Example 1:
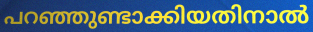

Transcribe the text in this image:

പറഞ്ഞുണ്ടാക്കിയതിനാൽ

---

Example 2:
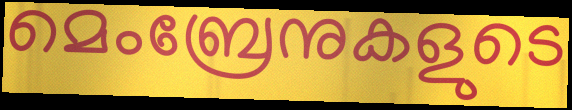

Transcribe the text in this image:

മെംബ്രേനുകളുടെ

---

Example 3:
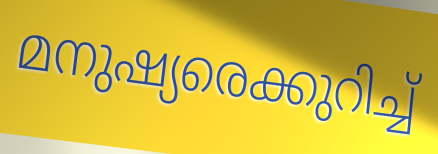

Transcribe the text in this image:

മനുഷ്യരെക്കുറിച്ച്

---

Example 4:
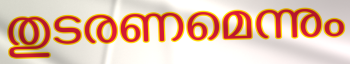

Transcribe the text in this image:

തുടരണമെന്നും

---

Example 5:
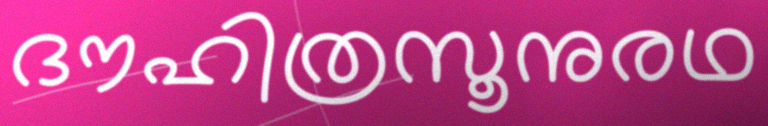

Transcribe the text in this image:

ദൗഹിത്രസൂനുരഥ